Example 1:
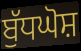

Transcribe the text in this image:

ਬੁੱਧਘੋਸ਼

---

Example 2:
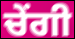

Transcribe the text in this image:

ਚੇਂਗੀ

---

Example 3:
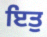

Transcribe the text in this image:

ਇਤੁ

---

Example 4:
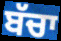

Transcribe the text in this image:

ਬੱਚਾ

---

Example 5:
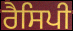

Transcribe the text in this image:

ਰੈਸਿਪੀ